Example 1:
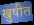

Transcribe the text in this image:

खुषीत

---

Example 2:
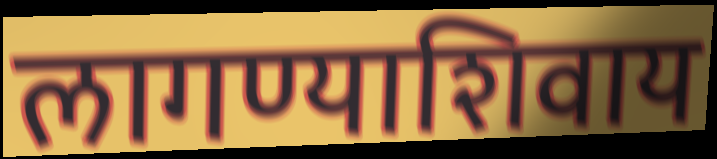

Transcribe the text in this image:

लागण्याशिवाय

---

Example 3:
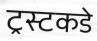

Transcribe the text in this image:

ट्रस्टकडे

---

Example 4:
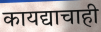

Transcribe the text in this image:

कायद्याचाही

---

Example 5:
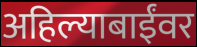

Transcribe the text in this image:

अहिल्याबाईंवर